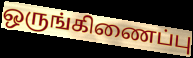
ஒருங்கிணைப்பு